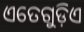
ଏତେଗୁଡ଼ିଏ